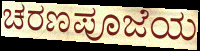
ಚರಣಪೂಜೆಯ